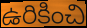
ఉరికించి